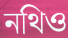
নথিও